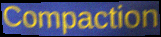
Compaction